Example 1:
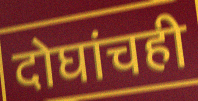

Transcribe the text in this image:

दोघांचही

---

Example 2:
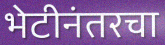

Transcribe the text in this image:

भेटीनंतरचा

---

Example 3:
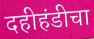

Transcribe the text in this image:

दहीहंडीचा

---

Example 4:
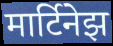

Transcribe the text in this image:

मार्टिनेझ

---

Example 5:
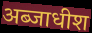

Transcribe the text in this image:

अब्जाधीश